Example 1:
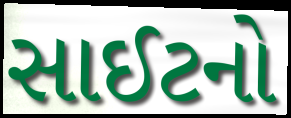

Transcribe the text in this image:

સાઈટનો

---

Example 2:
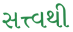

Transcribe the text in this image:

સત્ત્વથી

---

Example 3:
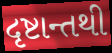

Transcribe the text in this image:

દૃષ્ટાન્તથી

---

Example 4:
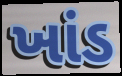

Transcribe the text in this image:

ખાંડ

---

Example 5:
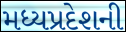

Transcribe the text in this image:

મધ્યપ્રદેશની